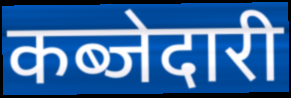
कब्जेदारी